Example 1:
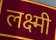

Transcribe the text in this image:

लक्ष्‍मी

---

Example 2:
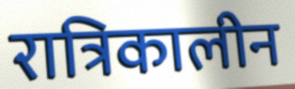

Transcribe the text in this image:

रात्रिकालीन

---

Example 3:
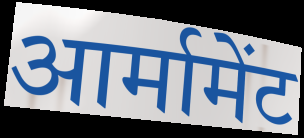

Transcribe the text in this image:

आर्मामेंट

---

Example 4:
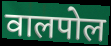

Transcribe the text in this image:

वालपोल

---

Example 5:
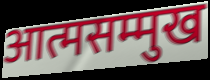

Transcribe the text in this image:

आत्मसम्मुख